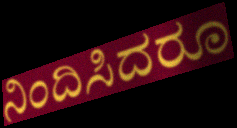
ನಿಂದಿಸಿದರೂ